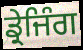
ਡ੍ਰੇਜਿੰਗ